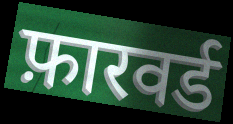
फ़ारवर्ड